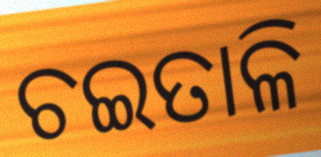
ଚଇତାଳି